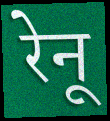
रेनू